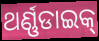
ଥର୍ଣ୍ଣଡାଇକ୍